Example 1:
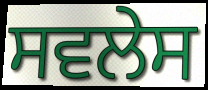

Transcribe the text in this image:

ਸਵਲੇਸ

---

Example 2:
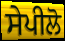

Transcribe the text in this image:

ਸੇਪੀਲੋ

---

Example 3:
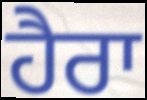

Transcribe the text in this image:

ਹੈਰਾ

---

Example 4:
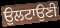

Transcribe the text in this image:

ਉਲਟਾਉਣੀ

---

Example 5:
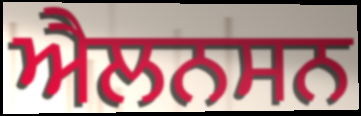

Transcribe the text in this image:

ਐਲਨਸਨ